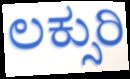
ಲಕ್ಸುರಿ